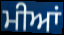
ਮੀਆਂ